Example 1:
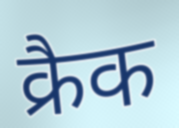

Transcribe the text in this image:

क्रैक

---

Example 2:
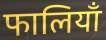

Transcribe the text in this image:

फालियाँ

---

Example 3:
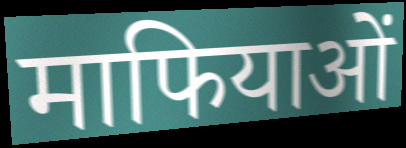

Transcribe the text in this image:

माफियाओं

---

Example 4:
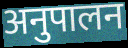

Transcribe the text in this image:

अनुपालन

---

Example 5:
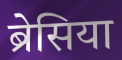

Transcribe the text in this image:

ब्रेसिया